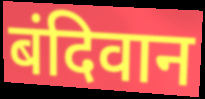
बंदिवान